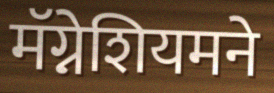
मॅग्नेशियमने